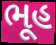
ભૂહ